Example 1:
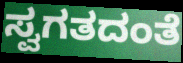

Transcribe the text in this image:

ಸ್ವಗತದಂತೆ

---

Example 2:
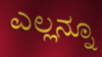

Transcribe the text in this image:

ಎಲ್ಲನ್ನೂ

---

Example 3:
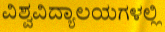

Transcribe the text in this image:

ವಿಶ್ವವಿದ್ಯಾಲಯಗಳಲ್ಲಿ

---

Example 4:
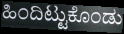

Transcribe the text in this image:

ಹಿಂದಿಟ್ಟುಕೊಂಡು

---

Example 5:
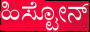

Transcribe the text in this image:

ಹಿಸ್ಟೋನ್